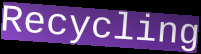
Recycling